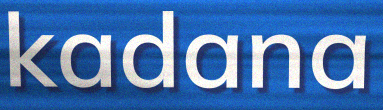
kadana